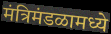
मंत्रिमंडळामध्ये